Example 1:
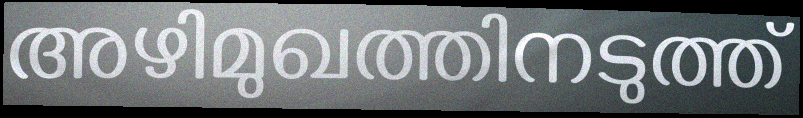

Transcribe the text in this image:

അഴിമുഖത്തിനടുത്ത്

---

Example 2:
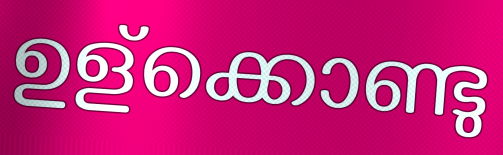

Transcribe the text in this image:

ഉള്ക്കൊണ്ടു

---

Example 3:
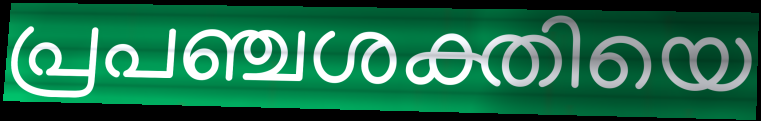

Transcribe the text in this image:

പ്രപഞ്ചശക്തിയെ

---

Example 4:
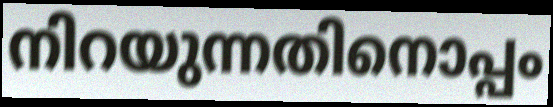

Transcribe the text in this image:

നിറയുന്നതിനൊപ്പം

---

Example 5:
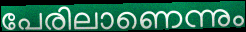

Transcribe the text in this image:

പേരിലാണെന്നും